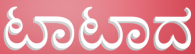
ಟಾಟಾದ